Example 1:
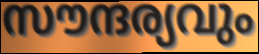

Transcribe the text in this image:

സൗന്ദര്യവും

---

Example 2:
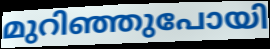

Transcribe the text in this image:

മുറിഞ്ഞുപോയി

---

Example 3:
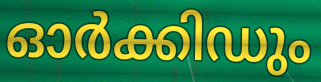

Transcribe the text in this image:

ഓർക്കിഡും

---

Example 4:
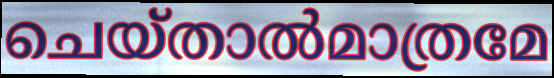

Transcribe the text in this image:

ചെയ്താൽമാത്രമേ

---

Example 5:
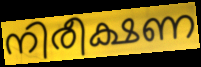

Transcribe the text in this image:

നിരീക്ഷണ